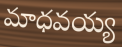
మాధవయ్య